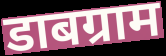
डाबग्राम